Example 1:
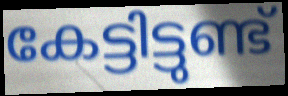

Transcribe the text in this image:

കേട്ടിട്ടുണ്ട്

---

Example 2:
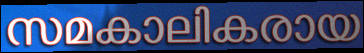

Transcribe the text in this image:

സമകാലികരായ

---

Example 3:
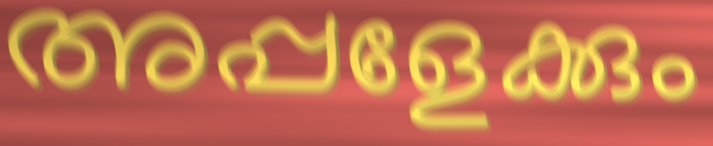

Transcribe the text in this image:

അപ്പളേക്കും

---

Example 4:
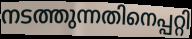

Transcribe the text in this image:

നടത്തുന്നതിനെപ്പറ്റി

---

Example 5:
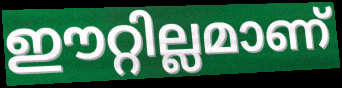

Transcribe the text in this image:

ഈറ്റില്ലമാണ്